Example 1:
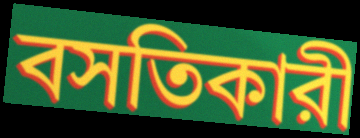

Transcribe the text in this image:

বসতিকারী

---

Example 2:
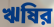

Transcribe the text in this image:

ঋষির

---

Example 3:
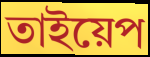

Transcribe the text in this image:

তাইয়েপ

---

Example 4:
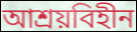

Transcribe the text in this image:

আশ্রয়বিহীন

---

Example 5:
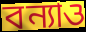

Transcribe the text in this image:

বন্যাও